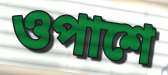
ওপাশে